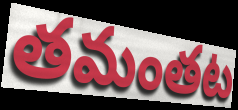
తమంతట